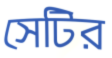
সেটির